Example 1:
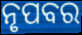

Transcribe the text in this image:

ନୃପବର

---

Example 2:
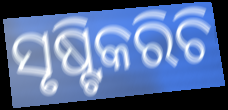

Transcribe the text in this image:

ସୃଷ୍ଟିକରିଚି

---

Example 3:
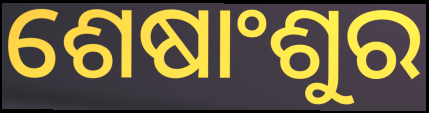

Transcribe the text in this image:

ଶେଷାଂଶୁର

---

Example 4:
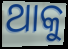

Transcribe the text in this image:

ଥାକୁ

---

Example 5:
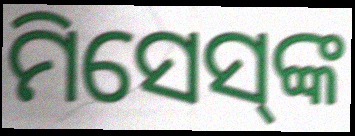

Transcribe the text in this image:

ମିସେସ୍‌ଙ୍କ